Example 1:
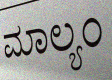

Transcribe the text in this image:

ಮಾಲ್ಯಂ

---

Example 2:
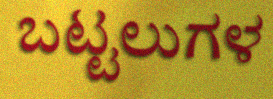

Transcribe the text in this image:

ಬಟ್ಟಲುಗಳ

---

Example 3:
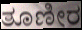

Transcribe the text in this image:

ತೂಣೀರ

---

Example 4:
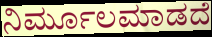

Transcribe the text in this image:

ನಿರ್ಮೂಲಮಾಡದೆ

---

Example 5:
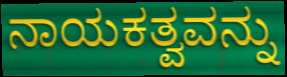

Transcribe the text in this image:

ನಾಯಕತ್ವವನ್ನು